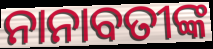
ନାନାବତୀଙ୍କ